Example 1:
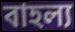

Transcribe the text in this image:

বাহল্য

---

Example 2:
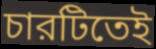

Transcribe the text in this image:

চারটিতেই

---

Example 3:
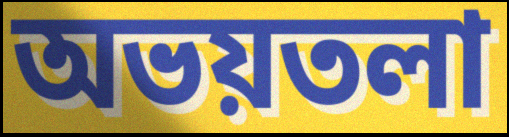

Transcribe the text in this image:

অভয়তলা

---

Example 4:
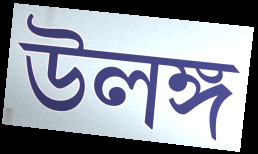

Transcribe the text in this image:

উলঙ্গ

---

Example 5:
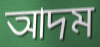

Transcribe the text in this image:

আদম